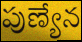
పుణ్యేన